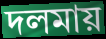
দলমায়